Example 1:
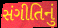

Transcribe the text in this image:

સંગીતિનું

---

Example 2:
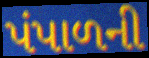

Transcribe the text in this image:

પંપાળની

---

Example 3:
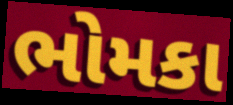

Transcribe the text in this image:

ભોમકા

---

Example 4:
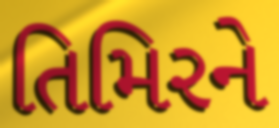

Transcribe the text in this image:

તિમિરને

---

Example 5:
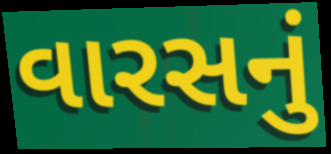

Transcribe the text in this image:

વારસનું